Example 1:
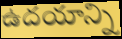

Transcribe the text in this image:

ఉదయాన్ని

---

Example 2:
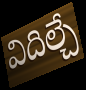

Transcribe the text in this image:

విదిల్చే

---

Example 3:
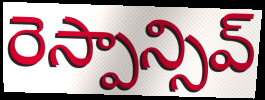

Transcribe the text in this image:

రెస్పాన్సివ్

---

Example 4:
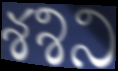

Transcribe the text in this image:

శశిని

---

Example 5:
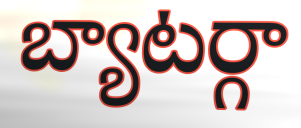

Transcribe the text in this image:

బ్యాటర్గా